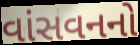
વાંસવનનો